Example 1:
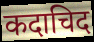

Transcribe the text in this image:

कदाचिद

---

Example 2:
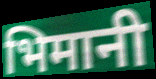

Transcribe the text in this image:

भिमानी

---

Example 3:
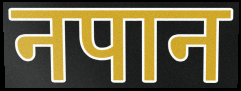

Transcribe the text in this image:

नपान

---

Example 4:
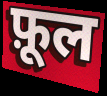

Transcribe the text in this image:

फ़ूल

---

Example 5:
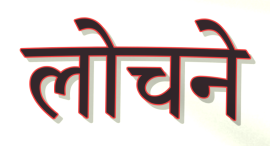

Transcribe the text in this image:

लोचने